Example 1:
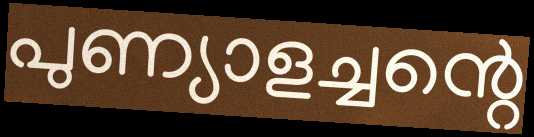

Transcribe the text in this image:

പുണ്യാളച്ചന്റെ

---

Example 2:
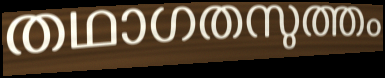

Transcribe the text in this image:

തഥാഗതസുത്തം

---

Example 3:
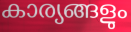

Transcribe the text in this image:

കാര്യങ്ങളും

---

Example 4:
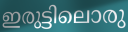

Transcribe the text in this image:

ഇരുട്ടിലൊരു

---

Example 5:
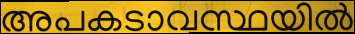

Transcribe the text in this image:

അപകടാവസ്ഥയിൽ